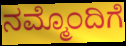
ನಮ್ಮೊಂದಿಗೆ